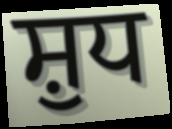
ਸ਼ੁਧ